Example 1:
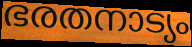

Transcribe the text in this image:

ഭരതനാട്യം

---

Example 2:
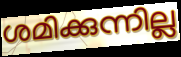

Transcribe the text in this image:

ശമിക്കുന്നില്ല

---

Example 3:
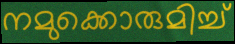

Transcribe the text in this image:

നമുക്കൊരുമിച്ച്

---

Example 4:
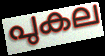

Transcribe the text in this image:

പുകല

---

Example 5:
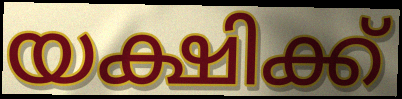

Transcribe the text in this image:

യക്ഷിക്ക്